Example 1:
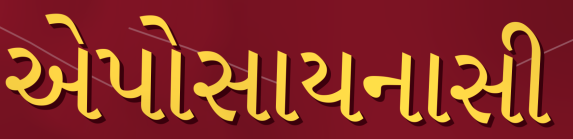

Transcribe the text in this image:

એપોસાયનાસી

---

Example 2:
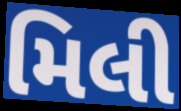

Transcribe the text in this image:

મિલી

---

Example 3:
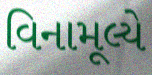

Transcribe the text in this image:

વિનામૂલ્યે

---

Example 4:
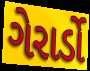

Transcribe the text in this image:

ગેરાર્ડો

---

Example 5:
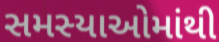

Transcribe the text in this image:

સમસ્યાઓમાંથી